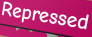
Repressed